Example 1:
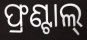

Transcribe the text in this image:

ଫ୍ରଣ୍ଟାଲ୍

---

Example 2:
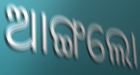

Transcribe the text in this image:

ଆଙ୍ଗଲୋ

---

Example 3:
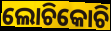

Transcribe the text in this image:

ଲୋଚିକୋଚି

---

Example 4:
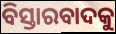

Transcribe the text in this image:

ବିସ୍ତାରବାଦକୁ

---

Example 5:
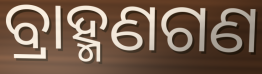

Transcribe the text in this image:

ବ୍ରାହ୍ମଣଗଣ